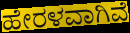
ಹೇರಳವಾಗಿವೆ